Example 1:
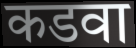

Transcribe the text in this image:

कडवा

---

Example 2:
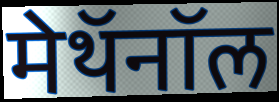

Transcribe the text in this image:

मेथॅनॉल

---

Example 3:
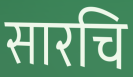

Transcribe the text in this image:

सारचि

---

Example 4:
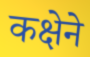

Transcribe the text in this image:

कक्षेने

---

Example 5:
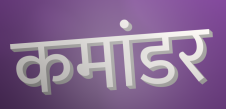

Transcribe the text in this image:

कमांडर